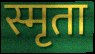
स्मृता